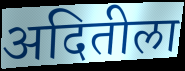
अदितीला